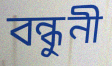
বন্ধুনী